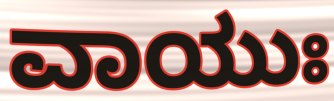
ವಾಯುಃ